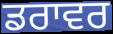
ਡਰਾਵਰ